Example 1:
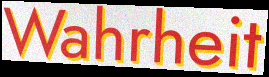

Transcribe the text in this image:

Wahrheit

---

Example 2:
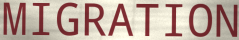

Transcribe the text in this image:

MIGRATION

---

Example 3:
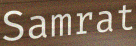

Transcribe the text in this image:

Samrat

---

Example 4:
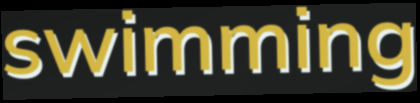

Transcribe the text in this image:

swimming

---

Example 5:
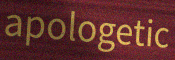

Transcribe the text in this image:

apologetic